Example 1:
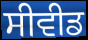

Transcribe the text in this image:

ਸੀਵੀਡ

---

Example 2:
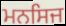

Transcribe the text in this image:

ਮਨਸਿਜ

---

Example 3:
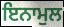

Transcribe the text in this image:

ਇਨਾਮੁਲ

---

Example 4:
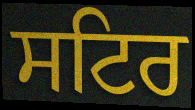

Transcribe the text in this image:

ਸਟਿਰ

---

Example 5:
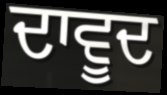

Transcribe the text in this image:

ਦਾਵੂਦ